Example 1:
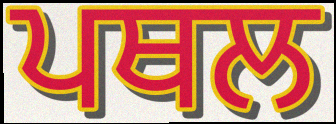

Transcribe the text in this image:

ਪਥਲ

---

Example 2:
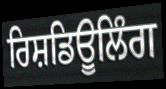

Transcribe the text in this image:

ਰਿਸ਼ਡਿਊਲਿੰਗ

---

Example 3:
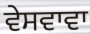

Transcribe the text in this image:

ਵੇਸਵਾਵਾ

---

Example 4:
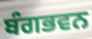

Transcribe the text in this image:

ਬੰਗਭਵਨ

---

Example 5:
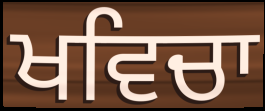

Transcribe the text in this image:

ਖਵਿਚਾ